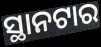
ସ୍ଥାନଟାର